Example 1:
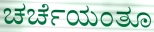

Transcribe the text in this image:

ಚರ್ಚೆಯಂತೂ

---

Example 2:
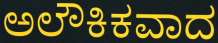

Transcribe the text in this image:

ಅಲೌಕಿಕವಾದ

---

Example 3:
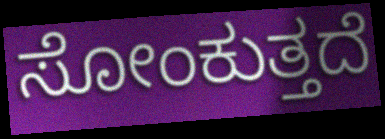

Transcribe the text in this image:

ಸೋಂಕುತ್ತದೆ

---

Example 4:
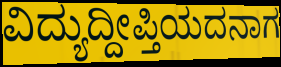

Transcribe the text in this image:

ವಿದ್ಯುದ್ದೀಪ್ತಿಯದನಾಗ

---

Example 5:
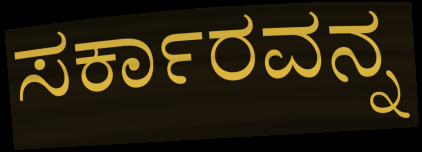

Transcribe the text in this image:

ಸರ್ಕಾರವನ್ನ